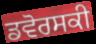
ਡਵੋਰਸਕੀ